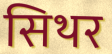
सिथर